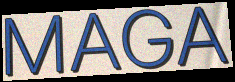
MAGA